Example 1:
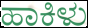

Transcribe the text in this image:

ಹಾಕಿಳು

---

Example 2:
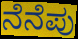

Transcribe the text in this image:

ನೆನೆಪು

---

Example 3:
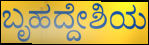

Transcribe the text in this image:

ಬೃಹದ್ದೇಶಿಯ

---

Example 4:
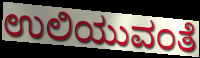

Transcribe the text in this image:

ಉಲಿಯುವಂತೆ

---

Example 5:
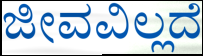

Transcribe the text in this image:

ಜೀವವಿಲ್ಲದೆ